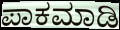
ಪಾಕಮಾಡಿ